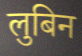
लुबिन